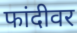
फांदीवर